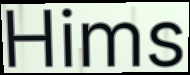
Hims